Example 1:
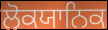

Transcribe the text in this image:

ਲੋਕਯਾਨਿਕ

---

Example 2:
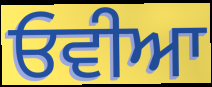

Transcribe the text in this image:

ਓਵੀਆ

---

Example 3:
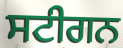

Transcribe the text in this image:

ਸਟੀਗਨ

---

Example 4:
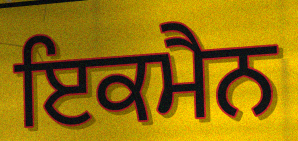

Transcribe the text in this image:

ਇਕਮੈਨ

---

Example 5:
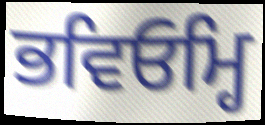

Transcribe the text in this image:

ਭਵਿਓਮ੍ਹਿ